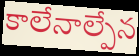
కాలేనాల్పేన